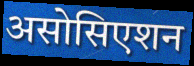
असोसिएशन